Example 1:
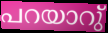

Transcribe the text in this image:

പറയാറു്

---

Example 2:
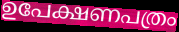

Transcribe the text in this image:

ഉപേക്ഷണപത്രം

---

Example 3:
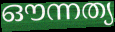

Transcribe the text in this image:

ഔന്നത്യ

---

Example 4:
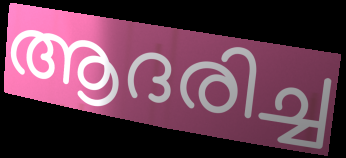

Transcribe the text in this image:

ആദരിച്ച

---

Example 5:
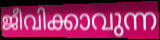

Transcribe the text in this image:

ജീവിക്കാവുന്ന